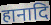
हानादि